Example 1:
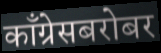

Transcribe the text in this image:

काँग्रेसबरोबर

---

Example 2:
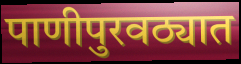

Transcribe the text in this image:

पाणीपुरवठ्यात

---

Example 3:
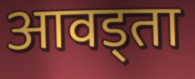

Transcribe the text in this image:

आवड्ता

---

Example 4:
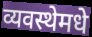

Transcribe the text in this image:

व्यवस्थेमधे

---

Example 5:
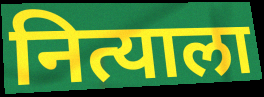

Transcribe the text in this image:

नित्याला